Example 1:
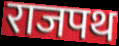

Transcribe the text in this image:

राजपथ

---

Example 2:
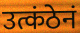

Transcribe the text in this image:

उत्कंठेनं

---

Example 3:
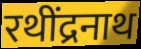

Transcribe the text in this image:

रथींद्रनाथ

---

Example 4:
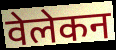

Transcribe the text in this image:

वेलेकन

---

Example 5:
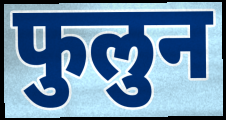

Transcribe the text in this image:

फुलुन